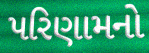
પરિણામનો